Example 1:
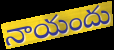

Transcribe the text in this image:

నాయందు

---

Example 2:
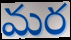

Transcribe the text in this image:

మర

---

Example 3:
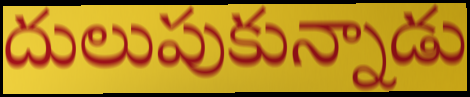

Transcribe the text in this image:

దులుపుకున్నాడు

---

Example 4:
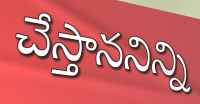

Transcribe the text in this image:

చేస్తాననిన్ని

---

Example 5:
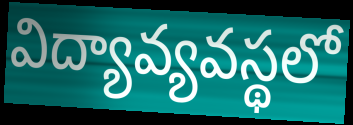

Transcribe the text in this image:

విద్యావ్యవస్థలో